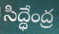
సిద్ధేంద్ర